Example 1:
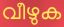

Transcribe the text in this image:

വീഴുക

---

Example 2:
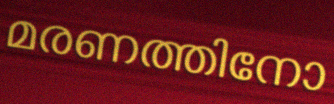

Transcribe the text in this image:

മരണത്തിനോ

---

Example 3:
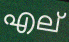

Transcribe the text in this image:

എല്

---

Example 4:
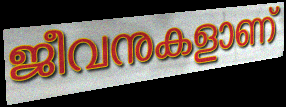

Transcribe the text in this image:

ജീവനുകളാണ്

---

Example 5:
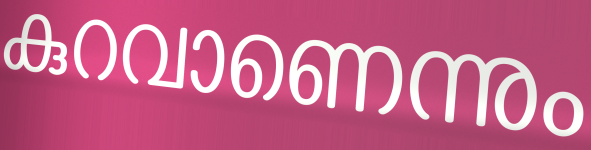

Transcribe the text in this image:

കുറവാണെന്നും